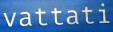
vattati